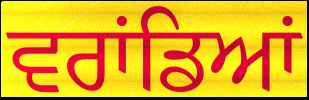
ਵਰਾਂਡਿਆਂ